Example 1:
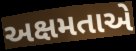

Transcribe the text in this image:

અક્ષમતાએ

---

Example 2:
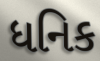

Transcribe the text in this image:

ધનિક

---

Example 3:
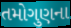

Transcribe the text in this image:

તમોગુણના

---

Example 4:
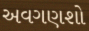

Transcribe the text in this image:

અવગણશો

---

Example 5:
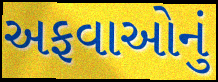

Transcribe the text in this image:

અફવાઓનું